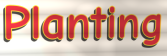
Planting